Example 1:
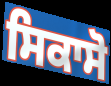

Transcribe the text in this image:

ਸਿਕਾਸੋ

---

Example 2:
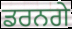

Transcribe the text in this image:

ਡਰਨਗੇ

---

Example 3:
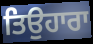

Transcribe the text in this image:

ਤਿਉਹਾਰਾ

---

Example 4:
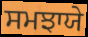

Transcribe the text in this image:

ਸਮਝਾਯੇ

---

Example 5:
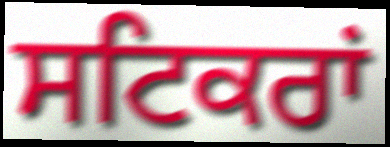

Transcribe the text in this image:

ਸਟਿਕਰਾਂ